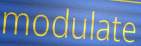
modulate